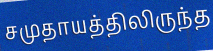
சமுதாயத்திலிருந்த